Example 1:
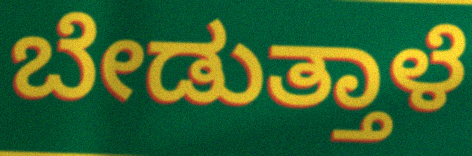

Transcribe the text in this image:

ಬೇಡುತ್ತಾಳೆ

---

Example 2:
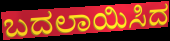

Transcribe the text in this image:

ಬದಲಾಯಿಸಿದ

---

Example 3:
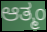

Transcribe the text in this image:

ಆತ್ಮಂ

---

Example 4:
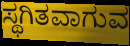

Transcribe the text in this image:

ಸ್ಥಗಿತವಾಗುವ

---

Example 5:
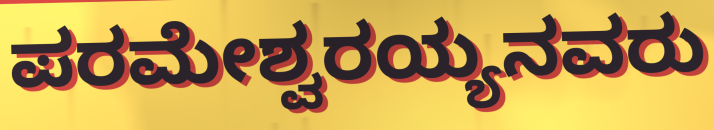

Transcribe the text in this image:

ಪರಮೇಶ್ವರಯ್ಯನವರು